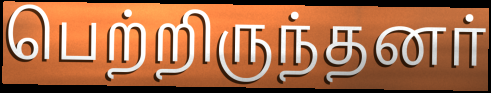
பெற்றிருந்தனர்